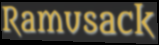
Ramusack